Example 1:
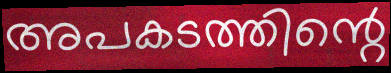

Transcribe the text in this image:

അപകടത്തിന്റെ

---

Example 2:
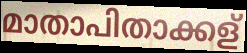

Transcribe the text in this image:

മാതാപിതാക്കള്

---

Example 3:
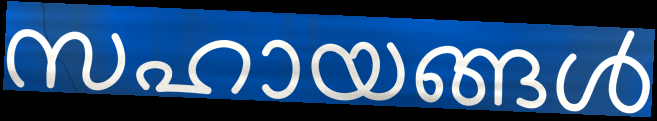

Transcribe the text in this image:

സഹായങ്ങൾ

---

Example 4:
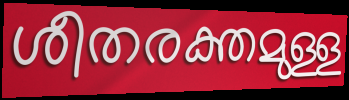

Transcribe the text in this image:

ശീതരക്തമുള്ള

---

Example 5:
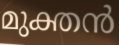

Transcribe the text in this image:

മുക്തൻ